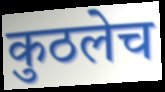
कुठलेच